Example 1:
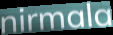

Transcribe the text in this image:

nirmala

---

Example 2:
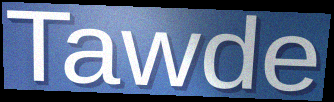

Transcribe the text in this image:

Tawde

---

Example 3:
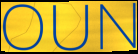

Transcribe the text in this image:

OUN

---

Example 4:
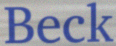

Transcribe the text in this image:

Beck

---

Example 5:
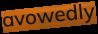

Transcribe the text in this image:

avowedly